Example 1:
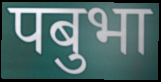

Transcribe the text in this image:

पबुभा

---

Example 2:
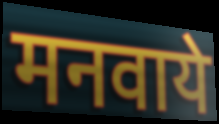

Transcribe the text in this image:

मनवाये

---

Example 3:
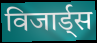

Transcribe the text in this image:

विजार्ड्स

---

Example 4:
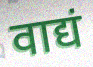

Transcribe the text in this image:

वाद्यं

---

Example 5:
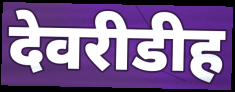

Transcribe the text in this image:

देवरीडीह